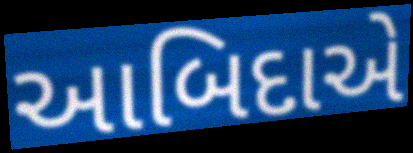
આબિદાએ